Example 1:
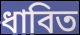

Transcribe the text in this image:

ধাবিত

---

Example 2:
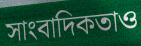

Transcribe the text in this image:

সাংবাদিকতাও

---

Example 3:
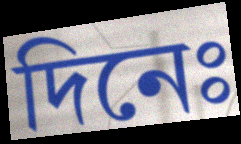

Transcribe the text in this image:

দিনেঃ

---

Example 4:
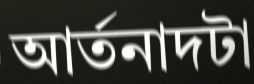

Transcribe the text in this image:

আর্তনাদটা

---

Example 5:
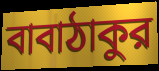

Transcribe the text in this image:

বাবাঠাকুর